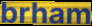
brham